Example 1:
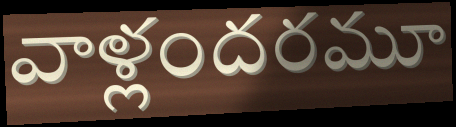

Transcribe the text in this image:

వాళ్లందరమూ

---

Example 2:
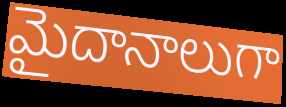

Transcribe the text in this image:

మైదానాలుగా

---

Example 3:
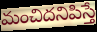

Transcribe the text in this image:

మంచిదనిపిస్తే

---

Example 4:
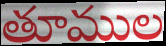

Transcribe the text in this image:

తూముల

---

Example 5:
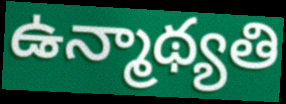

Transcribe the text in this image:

ఉన్మాథ్యతి